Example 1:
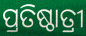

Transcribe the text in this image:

ପ୍ରତିଷ୍ଠାତ୍ରୀ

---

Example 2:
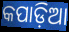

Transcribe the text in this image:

କପାଡ଼ିଆ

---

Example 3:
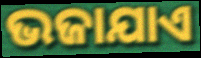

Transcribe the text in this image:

ଭଜାଯାଏ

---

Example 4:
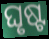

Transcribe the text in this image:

ଘୃଷ୍ଟ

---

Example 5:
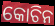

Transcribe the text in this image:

କୋଚିନ